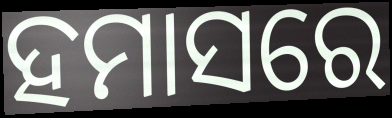
ହମାସରେ